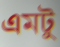
এমটু